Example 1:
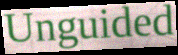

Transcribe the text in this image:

Unguided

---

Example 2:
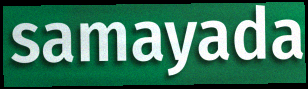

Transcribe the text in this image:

samayada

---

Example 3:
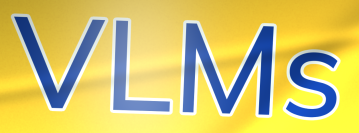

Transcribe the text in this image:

VLMs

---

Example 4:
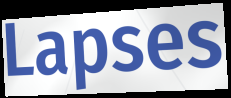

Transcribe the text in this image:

Lapses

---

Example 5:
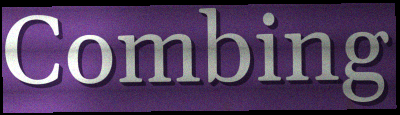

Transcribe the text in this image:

Combing